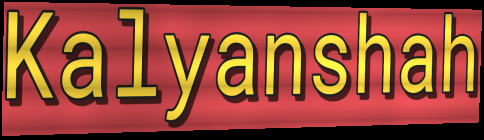
Kalyanshah